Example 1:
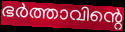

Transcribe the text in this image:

ഭർത്താവിന്റെ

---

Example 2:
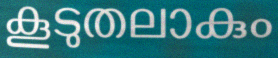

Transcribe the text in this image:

കൂടുതലാകും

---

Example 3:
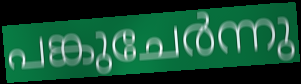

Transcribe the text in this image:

പങ്കുചേർന്നു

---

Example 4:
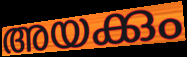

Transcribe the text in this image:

അയക്കും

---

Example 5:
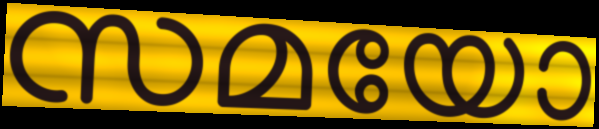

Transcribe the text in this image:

സമയോ